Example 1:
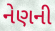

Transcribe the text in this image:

નેણની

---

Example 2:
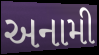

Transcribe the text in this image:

અનામી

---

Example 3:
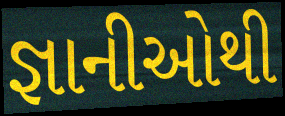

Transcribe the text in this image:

જ્ઞાનીઓથી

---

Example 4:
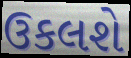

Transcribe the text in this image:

ઉકલશે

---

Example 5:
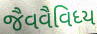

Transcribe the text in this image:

જૈવવૈવિધ્ય